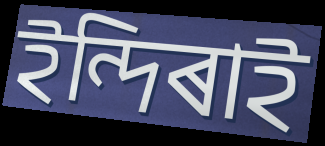
ইন্দিৰাই